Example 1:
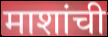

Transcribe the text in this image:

माशांची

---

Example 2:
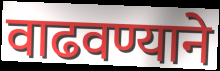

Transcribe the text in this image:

वाढवण्याने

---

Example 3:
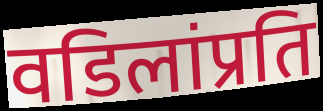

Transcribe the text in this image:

वडिलांप्रति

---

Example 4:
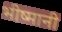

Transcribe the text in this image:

भीष्मानी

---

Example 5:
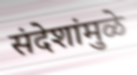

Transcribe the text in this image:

संदेशांमुळे